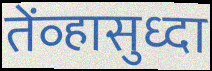
तेंव्हासुध्दा